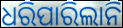
ଧରିପାରିଲାନି